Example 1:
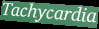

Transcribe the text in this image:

Tachycardia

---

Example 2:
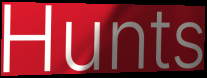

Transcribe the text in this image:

Hunts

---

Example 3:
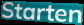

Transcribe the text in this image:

Starten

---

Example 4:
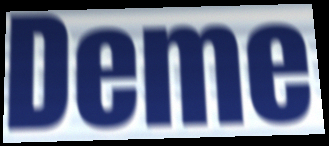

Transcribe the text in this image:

Deme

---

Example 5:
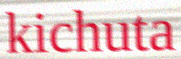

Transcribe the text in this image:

kichuta